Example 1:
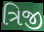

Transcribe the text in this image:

ત્રિજી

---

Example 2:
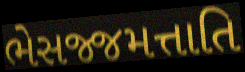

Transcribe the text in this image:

ભેસજ્જમત્તાતિ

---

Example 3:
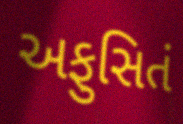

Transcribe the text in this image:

અફુસિતં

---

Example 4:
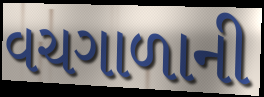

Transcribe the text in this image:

વચગાળાની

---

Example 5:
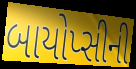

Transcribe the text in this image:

બાયોપ્સીની